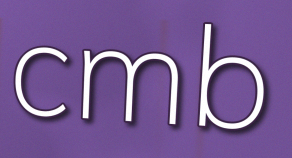
cmb